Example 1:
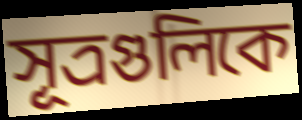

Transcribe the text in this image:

সূত্রগুলিকে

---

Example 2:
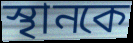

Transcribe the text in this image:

স্থানকে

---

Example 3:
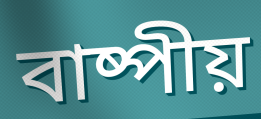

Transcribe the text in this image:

বাষ্পীয়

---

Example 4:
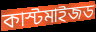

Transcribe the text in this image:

কাস্টমাইজড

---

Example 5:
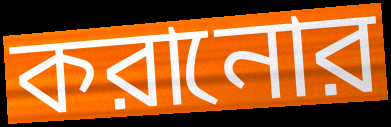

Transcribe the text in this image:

করানোর